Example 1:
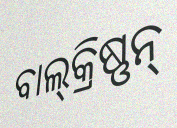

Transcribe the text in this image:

ବାଲ୍‍କ୍ରିଷ୍ଣନ୍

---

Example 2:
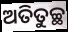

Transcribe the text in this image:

ଅତିତୁଚ୍ଛ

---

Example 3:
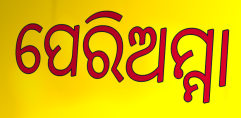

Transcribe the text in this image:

ପେରିଅମ୍ମା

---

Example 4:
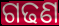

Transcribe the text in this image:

ଗଢଣ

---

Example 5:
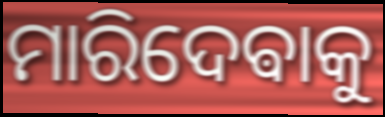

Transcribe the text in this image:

ମାରିଦେଵାକୁ